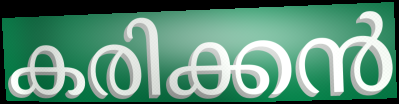
കരിക്കൻ